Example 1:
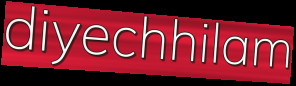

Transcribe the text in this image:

diyechhilam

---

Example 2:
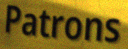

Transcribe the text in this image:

Patrons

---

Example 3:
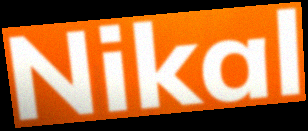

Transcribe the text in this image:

Nikal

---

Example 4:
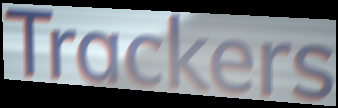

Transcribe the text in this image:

Trackers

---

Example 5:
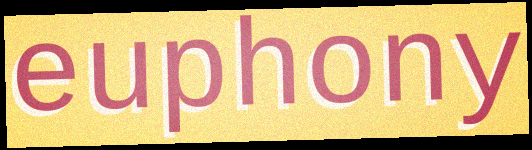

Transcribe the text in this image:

euphony